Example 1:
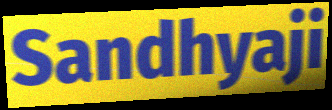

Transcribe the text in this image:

Sandhyaji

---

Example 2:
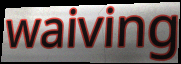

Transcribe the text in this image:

waiving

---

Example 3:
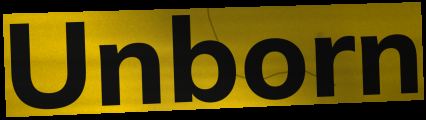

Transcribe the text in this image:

Unborn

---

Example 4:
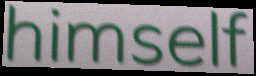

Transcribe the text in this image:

himself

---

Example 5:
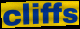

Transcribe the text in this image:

cliffs